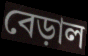
বেড়াল